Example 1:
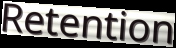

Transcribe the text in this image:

Retention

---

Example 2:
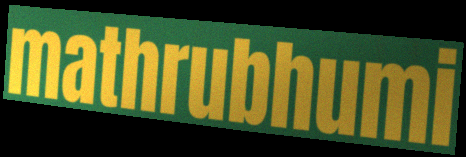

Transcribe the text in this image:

mathrubhumi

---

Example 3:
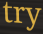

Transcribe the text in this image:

try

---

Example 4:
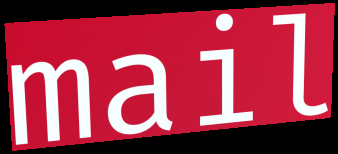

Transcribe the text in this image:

mail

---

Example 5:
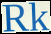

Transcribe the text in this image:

Rk